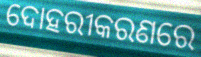
ଦୋହରୀକରଣରେ